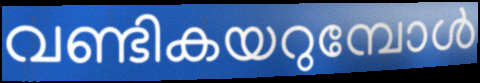
വണ്ടികയറുമ്പോൾ